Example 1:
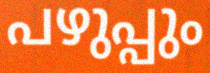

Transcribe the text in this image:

പഴുപ്പും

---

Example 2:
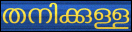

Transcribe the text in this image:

തനിക്കുള്ള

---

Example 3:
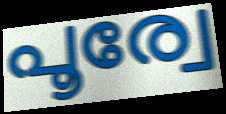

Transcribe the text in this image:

പൂര്വേ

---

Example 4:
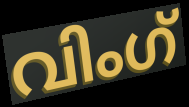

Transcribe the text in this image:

വിംഗ്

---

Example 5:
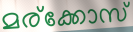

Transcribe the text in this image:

മര്ക്കോസ്